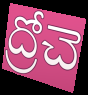
ద్రోచె